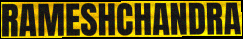
RAMESHCHANDRA